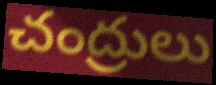
చంద్రులు